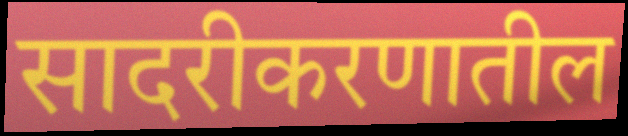
सादरीकरणातील